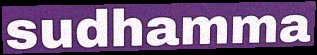
sudhamma